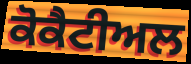
ਕੋਕੈਟੀਅਲ